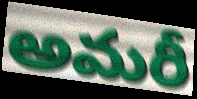
అమరీ